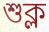
শুক্ল